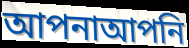
আপনাআপনি